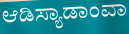
ಆಡಿಸ್ಯಾಡಾಂವಾ